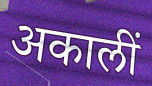
अकालीं